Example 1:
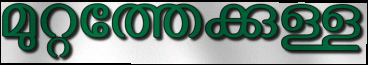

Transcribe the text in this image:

മുറ്റത്തേക്കുള്ള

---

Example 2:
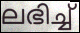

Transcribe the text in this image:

ലഭിച്ച്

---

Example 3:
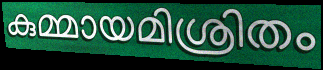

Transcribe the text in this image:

കുമ്മായമിശ്രിതം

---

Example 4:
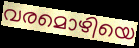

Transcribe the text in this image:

വരമൊഴിയെ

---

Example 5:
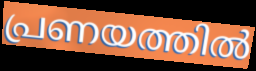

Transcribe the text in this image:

പ്രണയത്തിൽ